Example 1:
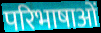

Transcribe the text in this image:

परिभाषाओं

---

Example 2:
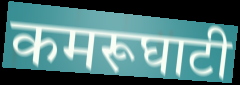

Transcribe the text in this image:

कमरूघाटी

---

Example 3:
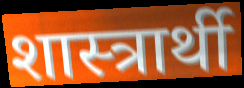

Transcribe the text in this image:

शास्त्रार्थी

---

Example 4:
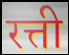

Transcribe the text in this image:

रत्ती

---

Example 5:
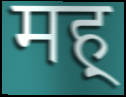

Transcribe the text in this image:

मह्